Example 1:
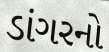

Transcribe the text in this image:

ડાંગરનો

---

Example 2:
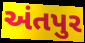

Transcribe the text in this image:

અંતપુર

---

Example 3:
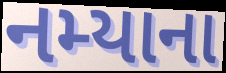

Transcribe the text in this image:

નમ્યાના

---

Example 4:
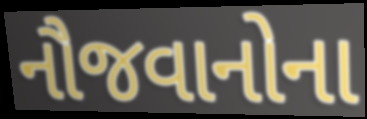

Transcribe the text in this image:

નૌજવાનોના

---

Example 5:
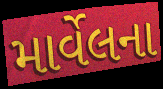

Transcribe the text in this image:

માર્વેલના